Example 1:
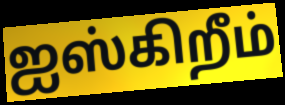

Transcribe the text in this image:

ஐஸ்கிறீம்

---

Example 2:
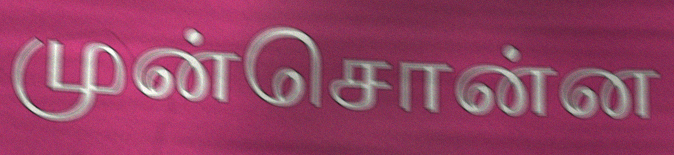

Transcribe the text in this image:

முன்சொன்ன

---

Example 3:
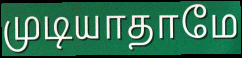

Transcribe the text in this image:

முடியாதாமே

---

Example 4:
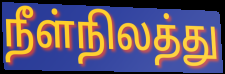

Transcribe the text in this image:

நீள்நிலத்து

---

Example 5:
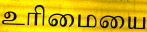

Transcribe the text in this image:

உரிமையை